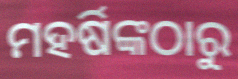
ମହର୍ଷିଙ୍କଠାରୁ